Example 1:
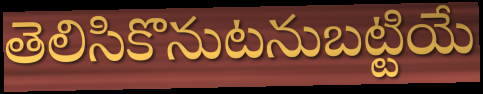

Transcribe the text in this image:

తెలిసికొనుటనుబట్టియే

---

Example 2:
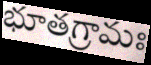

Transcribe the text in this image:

భూతగ్రామః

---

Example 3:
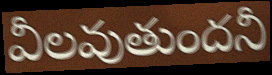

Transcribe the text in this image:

వీలవుతుందనీ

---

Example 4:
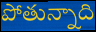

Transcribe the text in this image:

పోతున్నాది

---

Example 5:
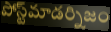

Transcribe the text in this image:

పోస్ట్‌మాడర్నిజం